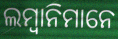
ଲମ୍ବାନିମାନେ